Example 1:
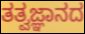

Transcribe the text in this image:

ತತ್ವಜ್ಞಾನದ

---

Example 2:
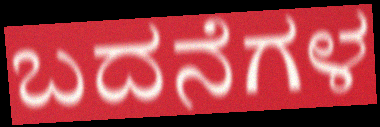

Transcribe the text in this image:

ಬದನೆಗಳ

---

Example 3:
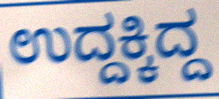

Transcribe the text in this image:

ಉದ್ದಕ್ಕಿದ್ದ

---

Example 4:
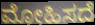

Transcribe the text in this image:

ಮೋಹಿಸದೆ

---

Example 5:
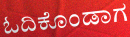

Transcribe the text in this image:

ಓದಿಕೊಂಡಾಗ